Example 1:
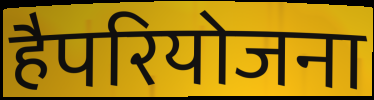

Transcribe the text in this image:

हैपरियोजना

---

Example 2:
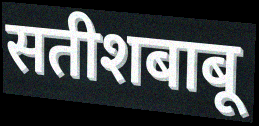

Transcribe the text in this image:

सतीशबाबू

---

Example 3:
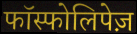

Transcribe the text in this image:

फॉस्फोलिपेज़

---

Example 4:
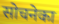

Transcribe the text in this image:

सोचनेका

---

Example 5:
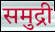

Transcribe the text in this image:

समुद्री